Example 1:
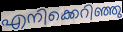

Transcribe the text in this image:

എനിക്കെറിഞ്ഞു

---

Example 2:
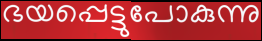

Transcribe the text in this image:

ഭയപ്പെട്ടുപോകുന്നു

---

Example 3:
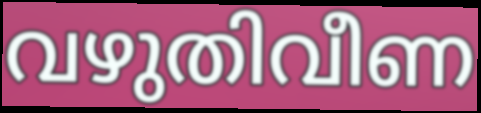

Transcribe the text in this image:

വഴുതിവീണ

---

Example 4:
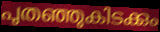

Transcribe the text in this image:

പുതഞ്ഞുകിടക്കും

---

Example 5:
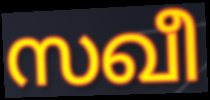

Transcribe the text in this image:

സഖീ